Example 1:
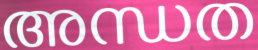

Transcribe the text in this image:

അന്ധത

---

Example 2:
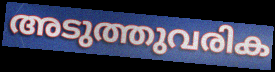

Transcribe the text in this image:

അടുത്തുവരിക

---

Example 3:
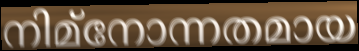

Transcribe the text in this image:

നിമ്നോന്നതമായ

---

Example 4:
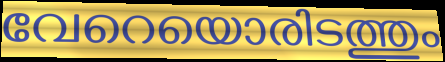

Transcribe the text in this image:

വേറെയൊരിടത്തും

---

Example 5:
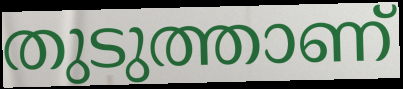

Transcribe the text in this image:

തുടുത്താണ്